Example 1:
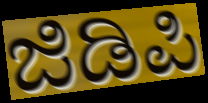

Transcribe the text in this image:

ಜಿಡಿಪಿ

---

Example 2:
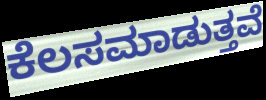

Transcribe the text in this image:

ಕೆಲಸಮಾಡುತ್ತವೆ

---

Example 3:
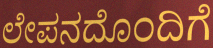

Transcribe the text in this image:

ಲೇಪನದೊಂದಿಗೆ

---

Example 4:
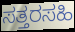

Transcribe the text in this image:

ಸತ್ತರಸಹಿ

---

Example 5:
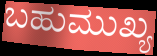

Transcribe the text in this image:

ಬಹುಮುಖ್ಯ